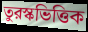
তুরস্কভিত্তিক